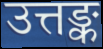
उत्तङ्क